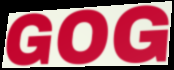
GOG